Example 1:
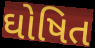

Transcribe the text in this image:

ઘોષિત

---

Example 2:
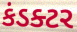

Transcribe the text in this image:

કંડક્ટર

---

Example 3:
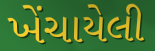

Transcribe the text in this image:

ખેંચાયેલી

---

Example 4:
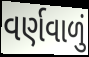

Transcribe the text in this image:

વર્ણવાળું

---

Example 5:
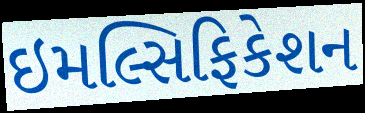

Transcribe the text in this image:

ઇમલ્સિફિકેશન